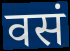
वसं